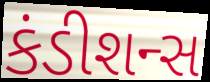
કંડીશન્સ